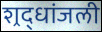
श्रद्धांजली